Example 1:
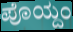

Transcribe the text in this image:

ಪೊಯ್ದಂ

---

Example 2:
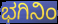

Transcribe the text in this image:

ಭಗಿನಿಂ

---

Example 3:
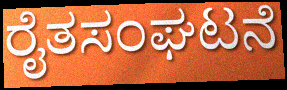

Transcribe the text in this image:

ರೈತಸಂಘಟನೆ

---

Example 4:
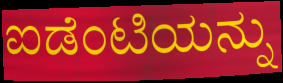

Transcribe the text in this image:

ಐಡೆಂಟಿಯನ್ನು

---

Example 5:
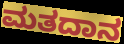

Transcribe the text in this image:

ಮತದಾನ